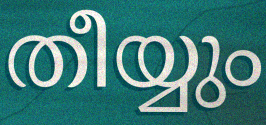
തീയ്യും